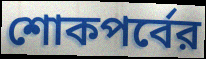
শোকপর্বের